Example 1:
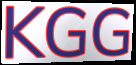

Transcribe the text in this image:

KGG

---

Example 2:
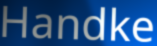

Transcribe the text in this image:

Handke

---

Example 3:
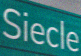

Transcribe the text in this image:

Siecle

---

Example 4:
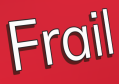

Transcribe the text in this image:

Frail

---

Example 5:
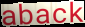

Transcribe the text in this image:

aback